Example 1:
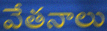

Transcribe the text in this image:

వేతనాలు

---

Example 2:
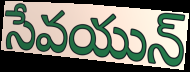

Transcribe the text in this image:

సేవయున్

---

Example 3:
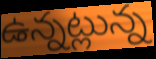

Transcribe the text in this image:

ఉన్నట్లున్న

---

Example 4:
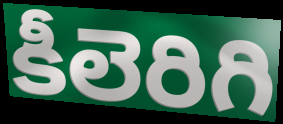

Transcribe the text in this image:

కీలెరిగి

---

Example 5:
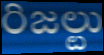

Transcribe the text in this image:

రిజల్టు